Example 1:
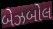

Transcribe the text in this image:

બેઝબોલ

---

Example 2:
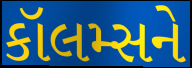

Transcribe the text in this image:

કૉલમ્સને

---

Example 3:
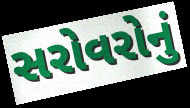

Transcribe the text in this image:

સરોવરોનું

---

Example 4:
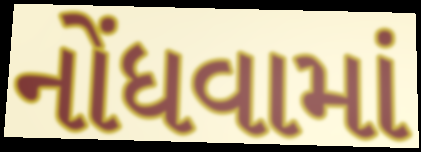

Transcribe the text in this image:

નોંધવામાં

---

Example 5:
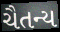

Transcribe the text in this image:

ચૈતન્ય